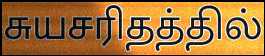
சுயசரிதத்தில்